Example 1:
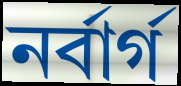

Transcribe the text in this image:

নর্বার্গ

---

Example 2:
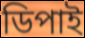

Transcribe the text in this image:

ডিপাই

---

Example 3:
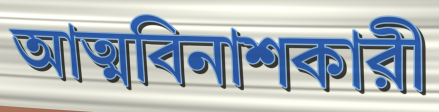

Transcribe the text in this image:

আত্মবিনাশকারী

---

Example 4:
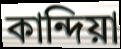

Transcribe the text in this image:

কান্দিয়া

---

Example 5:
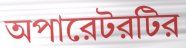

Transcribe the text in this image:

অপারেটরটির